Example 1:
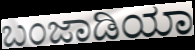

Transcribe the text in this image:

ಬಂಜಾಡಿಯಾ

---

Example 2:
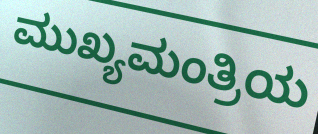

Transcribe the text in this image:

ಮುಖ್ಯಮಂತ್ರಿಯ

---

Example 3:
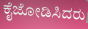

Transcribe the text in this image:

ಕೈಜೋಡಿಸಿದರು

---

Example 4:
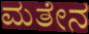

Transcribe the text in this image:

ಮತೇನ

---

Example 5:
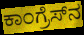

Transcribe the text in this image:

ಕಾಂಗ್ರೆಸ್‍ನ